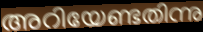
അറിയേണ്ടതിന്നു